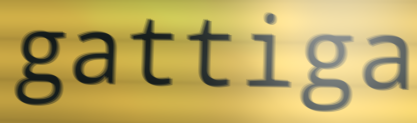
gattiga